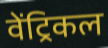
वेंट्रिकल